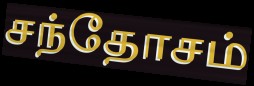
சந்தோசம்